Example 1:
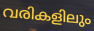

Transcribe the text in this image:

വരികളിലും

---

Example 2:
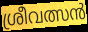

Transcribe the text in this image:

ശ്രീവത്സൻ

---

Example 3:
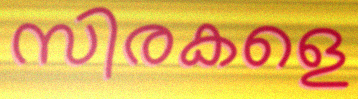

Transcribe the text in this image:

സിരകളെ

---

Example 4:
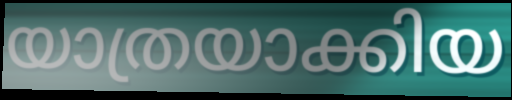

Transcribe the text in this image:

യാത്രയാക്കിയ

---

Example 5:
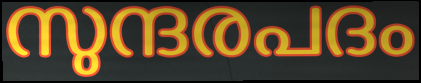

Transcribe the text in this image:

സുന്ദരപദം